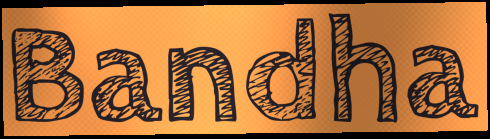
Bandha